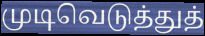
முடிவெடுத்துத்